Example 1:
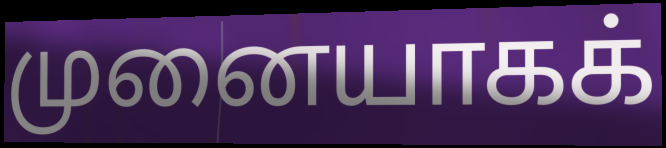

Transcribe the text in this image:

முனையாகக்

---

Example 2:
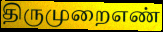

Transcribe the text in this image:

திருமுறைஎண்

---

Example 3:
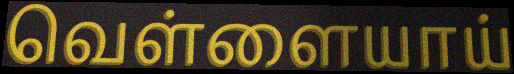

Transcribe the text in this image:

வெள்ளையாய்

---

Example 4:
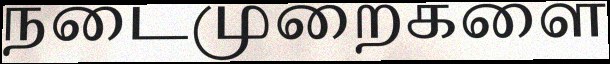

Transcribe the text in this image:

நடைமுறைகளை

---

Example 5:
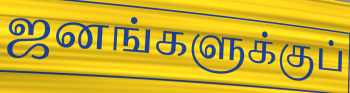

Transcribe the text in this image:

ஜனங்களுக்குப்